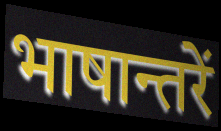
भाषान्तरें